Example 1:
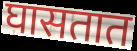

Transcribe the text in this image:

घासतात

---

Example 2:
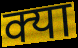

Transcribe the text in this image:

क्या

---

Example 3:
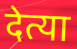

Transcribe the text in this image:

देत्या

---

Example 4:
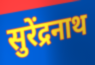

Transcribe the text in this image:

सुरेंद्रनाथ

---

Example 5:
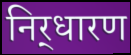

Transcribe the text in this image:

निर्धारण